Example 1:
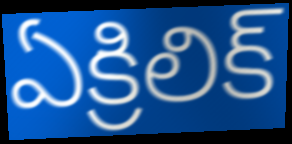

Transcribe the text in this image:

ఏక్రిలిక్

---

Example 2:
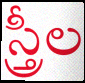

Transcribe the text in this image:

స్త్రీల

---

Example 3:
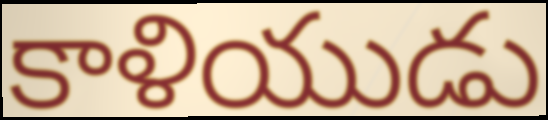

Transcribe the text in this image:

కాళియుడు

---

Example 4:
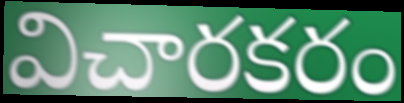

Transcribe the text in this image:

విచారకరం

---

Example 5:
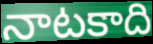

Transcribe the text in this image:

నాటకాది